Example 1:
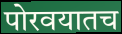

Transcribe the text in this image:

पोरवयातच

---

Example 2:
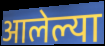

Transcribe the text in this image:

आलेल्या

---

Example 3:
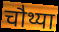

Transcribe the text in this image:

चौथ्या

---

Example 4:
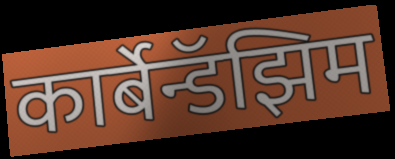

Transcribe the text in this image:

कार्बेन्डॅझिम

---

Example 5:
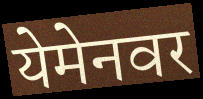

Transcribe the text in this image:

येमेनवर